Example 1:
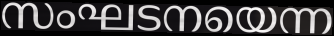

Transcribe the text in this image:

സംഘടനയെന്ന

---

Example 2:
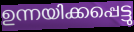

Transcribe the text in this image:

ഉന്നയിക്കപ്പെട്ടു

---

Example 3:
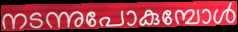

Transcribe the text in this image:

നടന്നുപോകുമ്പോൾ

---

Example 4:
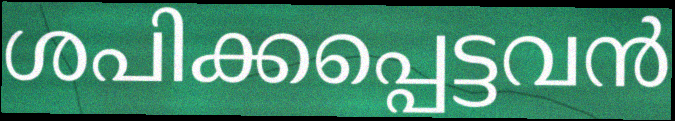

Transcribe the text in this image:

ശപിക്കപ്പെട്ടവൻ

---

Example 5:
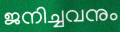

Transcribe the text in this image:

ജനിച്ചവനും